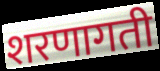
शरणागती